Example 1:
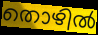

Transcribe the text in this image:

തൊഴിൽ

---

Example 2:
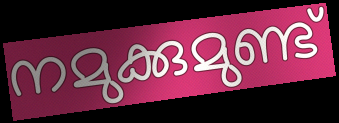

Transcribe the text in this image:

നമുക്കുമുണ്ട്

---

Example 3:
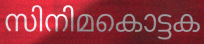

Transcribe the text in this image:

സിനിമകൊട്ടക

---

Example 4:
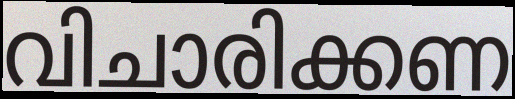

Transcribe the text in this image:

വിചാരിക്കണ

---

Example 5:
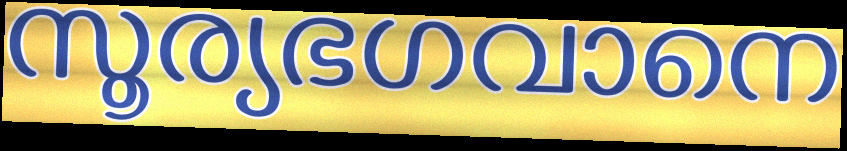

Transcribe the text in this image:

സൂര്യഭഗവാനെ